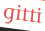
gitti